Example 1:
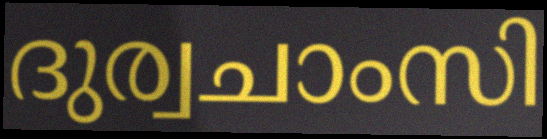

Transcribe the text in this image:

ദുര്വചാംസി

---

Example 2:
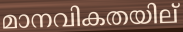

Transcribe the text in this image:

മാനവികതയില്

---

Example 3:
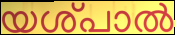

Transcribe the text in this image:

യശ്പാൽ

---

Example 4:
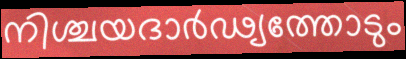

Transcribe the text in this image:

നിശ്ചയദാർഢ്യത്തോടും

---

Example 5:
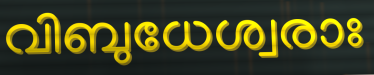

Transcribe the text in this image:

വിബുധേശ്വരാഃ